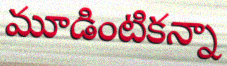
మూడింటికన్నా